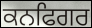
ਕਨਫਿਗਰ